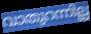
വാതുറന്നില്ല